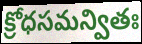
క్రోధసమన్వితః